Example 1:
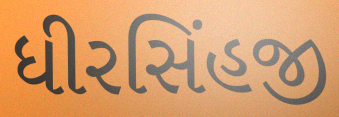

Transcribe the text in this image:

ધીરસિંહજી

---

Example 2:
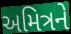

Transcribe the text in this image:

અમિત્રને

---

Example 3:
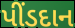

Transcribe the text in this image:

પીંડદાન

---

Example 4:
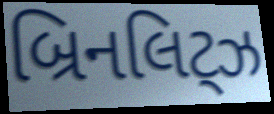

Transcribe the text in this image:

બ્રિનલિટ્ઝ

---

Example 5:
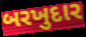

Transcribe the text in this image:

બરખુદાર